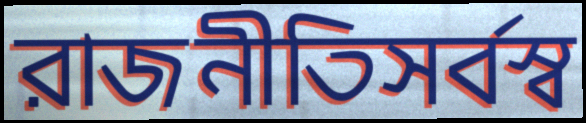
রাজনীতিসর্বস্ব